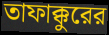
তাফাক্কুরের